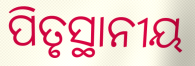
ପିତୃସ୍ଥାନୀୟ